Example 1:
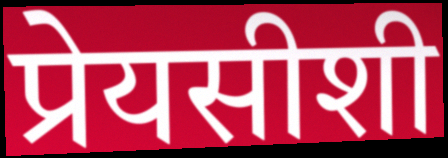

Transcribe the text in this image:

प्रेयसीशी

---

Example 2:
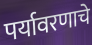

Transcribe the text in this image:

पर्यावरणाचे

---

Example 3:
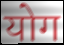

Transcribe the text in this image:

योग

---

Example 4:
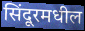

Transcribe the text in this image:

सिंदूरमधील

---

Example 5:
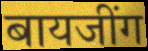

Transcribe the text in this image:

बायजींग